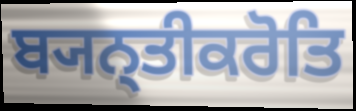
ਬ੍ਯਨ੍ਤੀਕਰੋਤਿ